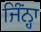
ਜਿੰਂਨ੍ਹਾ